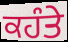
ਕਹੰਤੇ